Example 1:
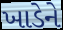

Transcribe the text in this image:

ખાડેને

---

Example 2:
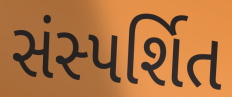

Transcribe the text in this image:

સંસ્પર્શિત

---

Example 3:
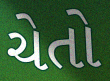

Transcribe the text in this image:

ચેતો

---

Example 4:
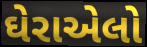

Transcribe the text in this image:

ઘેરાએલો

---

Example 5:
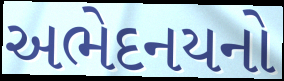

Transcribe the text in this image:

અભેદનયનો